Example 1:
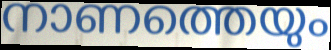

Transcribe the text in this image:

നാണത്തെയും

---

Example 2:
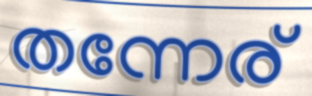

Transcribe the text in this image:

തന്നേര്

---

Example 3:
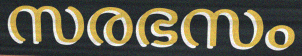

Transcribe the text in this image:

സരഭസം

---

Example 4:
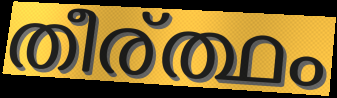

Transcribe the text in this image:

തീര്ത്ഥം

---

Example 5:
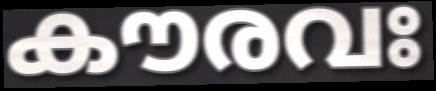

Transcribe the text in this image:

കൗരവഃ